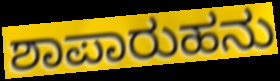
ಶಾಪಾರುಹನು